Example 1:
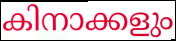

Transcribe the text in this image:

കിനാക്കളും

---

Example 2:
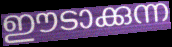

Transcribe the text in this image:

ഈടാക്കുന്ന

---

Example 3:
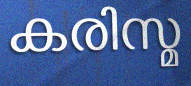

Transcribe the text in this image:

കരിസ്മ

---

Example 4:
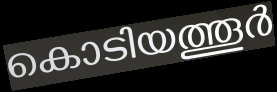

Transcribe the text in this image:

കൊടിയത്തൂർ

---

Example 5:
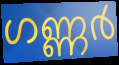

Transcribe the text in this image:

ഗണ്ണർ